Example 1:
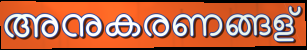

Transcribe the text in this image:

അനുകരണങ്ങള്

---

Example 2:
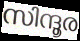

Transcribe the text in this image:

സിന്ദൂര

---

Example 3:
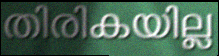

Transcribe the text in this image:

തിരികയില്ല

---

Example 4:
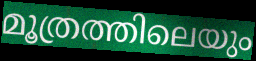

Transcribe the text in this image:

മൂത്രത്തിലെയും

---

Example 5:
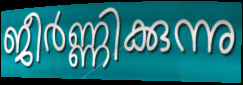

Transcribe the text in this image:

ജീർണ്ണിക്കുന്നു